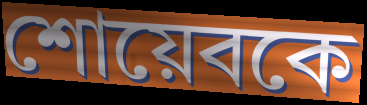
শোয়েবকে